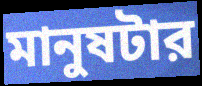
মানুষটার